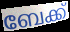
ബേക്ക്